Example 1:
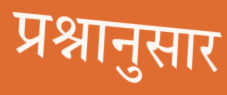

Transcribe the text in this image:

प्रश्नानुसार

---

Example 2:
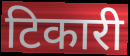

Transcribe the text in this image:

टिकारी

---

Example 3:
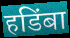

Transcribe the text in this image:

हडिंबा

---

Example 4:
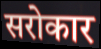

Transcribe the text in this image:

सरोकार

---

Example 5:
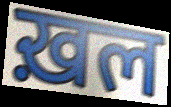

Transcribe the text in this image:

ख़ल